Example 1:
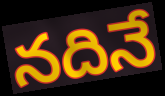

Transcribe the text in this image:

నదినే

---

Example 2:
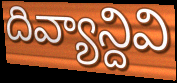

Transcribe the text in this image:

దివ్యాన్దివి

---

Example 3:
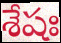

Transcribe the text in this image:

శేషః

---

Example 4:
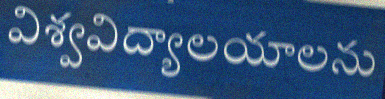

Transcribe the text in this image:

విశ్వవిద్యాలయాలను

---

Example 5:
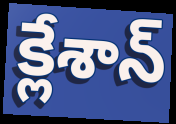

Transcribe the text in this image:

క్లేశాన్